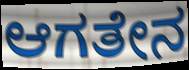
ಆಗತೇನ